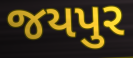
જયપુર